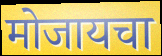
मोजायचा